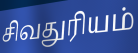
சிவதுரியம்